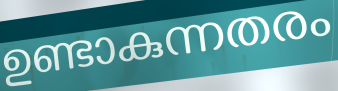
ഉണ്ടാകുന്നതരം